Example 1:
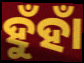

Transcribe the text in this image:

ହୁଁହାଁ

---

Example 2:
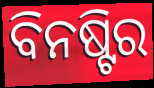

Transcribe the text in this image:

ବିନଷ୍ଟିର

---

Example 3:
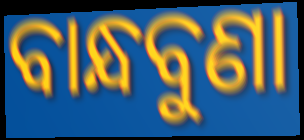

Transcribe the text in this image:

ବାନ୍ଧବୁଣା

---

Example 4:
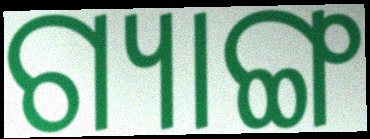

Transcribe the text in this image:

ଗ୍ୟାଙ୍ଗ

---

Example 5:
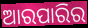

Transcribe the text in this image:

ଆରପାରିର